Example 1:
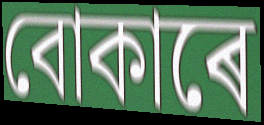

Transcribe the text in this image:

বোকাৰে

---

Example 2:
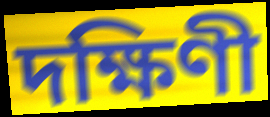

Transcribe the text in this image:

দক্ষিণী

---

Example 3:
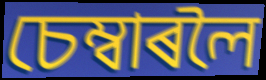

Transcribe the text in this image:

চেম্বাৰলৈ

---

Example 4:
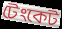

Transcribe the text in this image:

টেংকেট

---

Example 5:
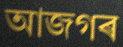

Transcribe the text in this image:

আজগৰ